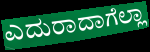
ಎದುರಾದಾಗೆಲ್ಲಾ